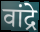
वांद्रे